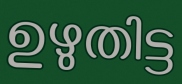
ഉഴുതിട്ട